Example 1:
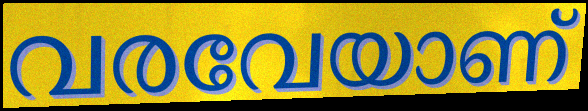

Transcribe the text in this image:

വരവേയാണ്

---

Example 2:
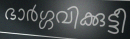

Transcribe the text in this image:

ഭാർഗ്ഗവിക്കുട്ടീ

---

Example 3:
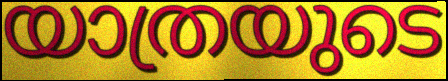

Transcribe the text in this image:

യാത്രയുടെ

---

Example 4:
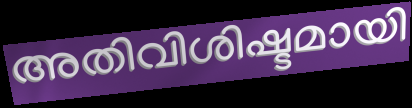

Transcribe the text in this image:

അതിവിശിഷ്ടമായി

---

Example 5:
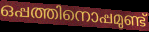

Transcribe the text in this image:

ഒപ്പത്തിനൊപ്പമുണ്ട്